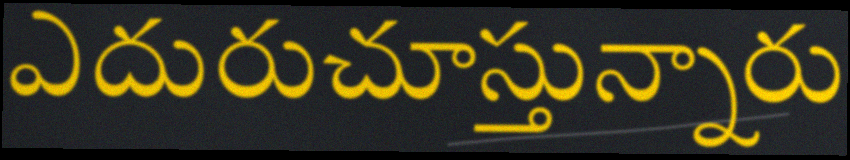
ఎదురుచూస్తున్నారు